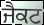
ਜੈਕਟ